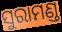
ସୁରାମଣ୍ଡ